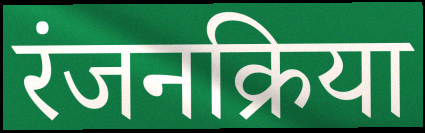
रंजनक्रिया